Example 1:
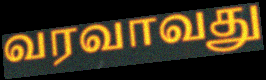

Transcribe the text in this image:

வரவாவது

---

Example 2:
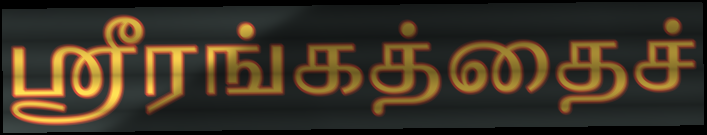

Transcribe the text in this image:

ஸ்ரீரங்கத்தைச்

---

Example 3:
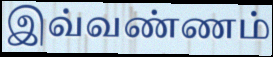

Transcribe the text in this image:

இவ்வண்ணம்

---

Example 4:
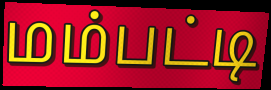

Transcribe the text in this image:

மம்பட்டி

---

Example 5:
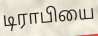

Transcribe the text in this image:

டிராபியை